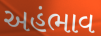
અહંભાવ